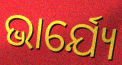
ଭାର୍ଯ୍ଯେ